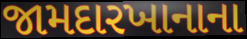
જામદારખાનાના